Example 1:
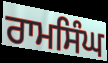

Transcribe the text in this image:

ਰਾਮਸਿੰਘ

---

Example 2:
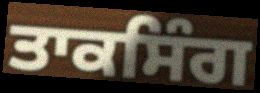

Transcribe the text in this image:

ਤਾਕਸਿੰਗ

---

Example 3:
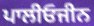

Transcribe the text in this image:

ਪਾਲੀਓਜੀਨ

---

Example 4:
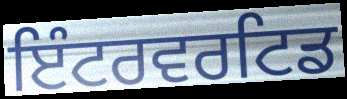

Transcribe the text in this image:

ਇੰਟਰਵਰਟਿਡ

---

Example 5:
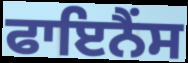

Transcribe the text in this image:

ਫਾਇਨੈਂਸ